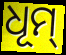
ଧୂମ୍